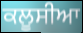
ਕਲੂਸੀਆ